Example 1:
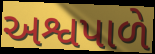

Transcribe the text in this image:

અશ્વપાળે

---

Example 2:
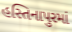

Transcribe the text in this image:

હસ્તિનાપુરમાં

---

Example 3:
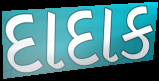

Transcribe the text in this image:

દાદાક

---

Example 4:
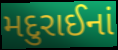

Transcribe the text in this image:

મદુરાઈનાં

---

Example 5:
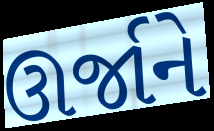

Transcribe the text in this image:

ઊર્જાને